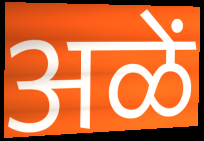
अळें